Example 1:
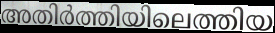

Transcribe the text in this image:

അതിർത്തിയിലെത്തിയ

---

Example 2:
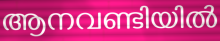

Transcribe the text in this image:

ആനവണ്ടിയിൽ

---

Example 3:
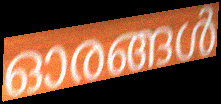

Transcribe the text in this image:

ഓരങ്ങൾ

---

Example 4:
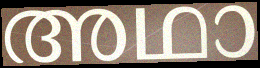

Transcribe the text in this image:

അഥാ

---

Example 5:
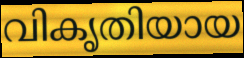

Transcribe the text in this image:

വികൃതിയായ